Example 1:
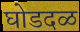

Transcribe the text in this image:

घोडदळ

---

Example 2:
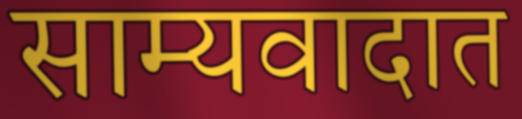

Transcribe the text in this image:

साम्यवादात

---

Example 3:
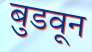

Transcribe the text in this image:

बुडवून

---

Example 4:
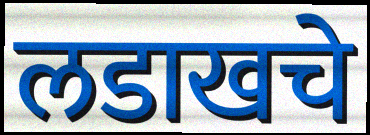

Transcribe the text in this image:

लडाखचे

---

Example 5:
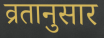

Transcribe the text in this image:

व्रतानुसार